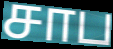
சாப